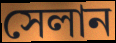
সেলান